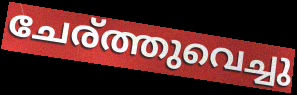
ചേര്ത്തുവെച്ചു